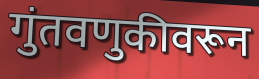
गुंतवणुकीवरून